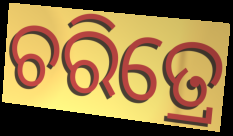
ଚରିତ୍ରେ